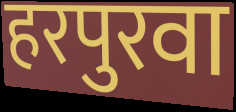
हरपुरवा